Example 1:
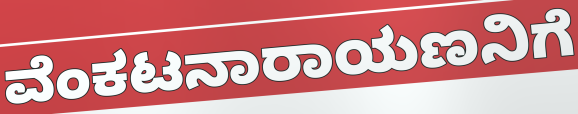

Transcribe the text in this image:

ವೆಂಕಟನಾರಾಯಣನಿಗೆ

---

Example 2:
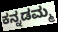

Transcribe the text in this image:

ಕನ್ನಡಮ್ಮ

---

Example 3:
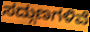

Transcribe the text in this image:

ಸದ್ಗುಣಗಳಿವೆ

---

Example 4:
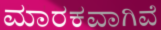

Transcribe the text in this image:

ಮಾರಕವಾಗಿವೆ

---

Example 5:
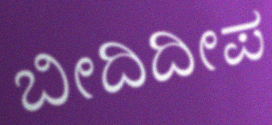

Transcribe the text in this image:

ಬೀದಿದೀಪ